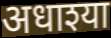
अधाश्या